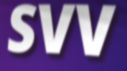
SVV